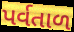
પર્વતાળ